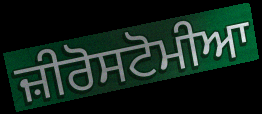
ਜ਼ੀਰੋਸਟੋਮੀਆ